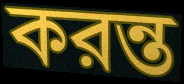
করন্ত